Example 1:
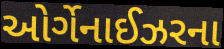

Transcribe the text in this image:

ઓર્ગેનાઈઝરના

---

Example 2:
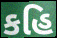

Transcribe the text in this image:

કહિ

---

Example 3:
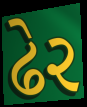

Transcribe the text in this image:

ઢેર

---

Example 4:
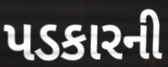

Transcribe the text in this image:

પડકારની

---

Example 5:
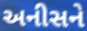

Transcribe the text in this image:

અનીસને